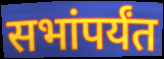
सभांपर्यंत